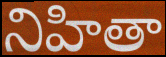
నిహితా